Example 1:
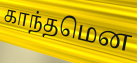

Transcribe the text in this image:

காந்தமென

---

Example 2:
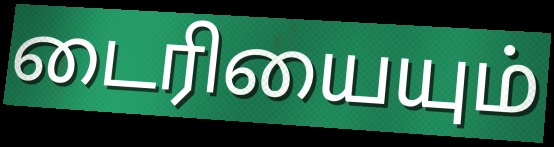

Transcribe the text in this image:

டைரியையும்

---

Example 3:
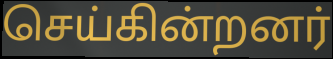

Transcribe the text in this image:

செய்கின்றனர்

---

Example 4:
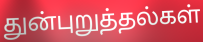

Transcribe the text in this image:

துன்புறுத்தல்கள்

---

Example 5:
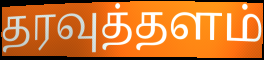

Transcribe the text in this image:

தரவுத்தளம்